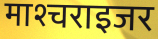
माश्चराइजर